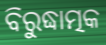
ବିରୁଦ୍ଧାତ୍ମକ